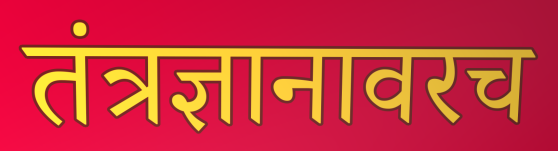
तंत्रज्ञानावरच